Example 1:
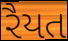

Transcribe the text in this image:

રૈયત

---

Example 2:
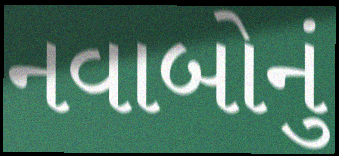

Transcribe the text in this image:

નવાબોનું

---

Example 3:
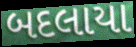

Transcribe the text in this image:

બદલાયા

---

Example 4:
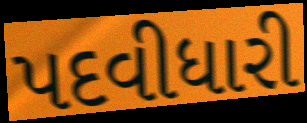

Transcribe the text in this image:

પદવીધારી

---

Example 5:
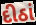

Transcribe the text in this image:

દીઠાં